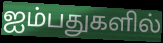
ஐம்பதுகளில்